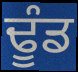
ਢੂੰਡ